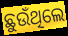
ଛୁଉଁଥିଲେ